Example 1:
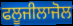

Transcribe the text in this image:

ਫਲੂਜੀਲਾਜੋਲ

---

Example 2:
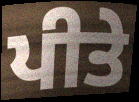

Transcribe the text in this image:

ਪੀਤੇ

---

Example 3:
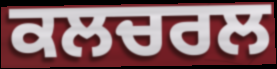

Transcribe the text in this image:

ਕਲਚਰਲ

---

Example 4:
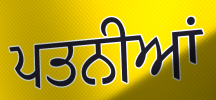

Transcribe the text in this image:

ਪਤਨੀਆਂ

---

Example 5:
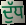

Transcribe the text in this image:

ਦੁੱਧ